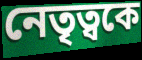
নেতৃত্বকে